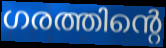
ഗരത്തിന്റെ